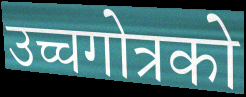
उच्चगोत्रको